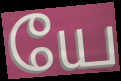
யே